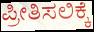
ಪ್ರೀತಿಸಲಿಕ್ಕೆ